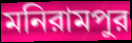
মনিরামপুর